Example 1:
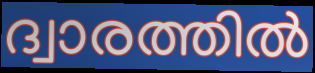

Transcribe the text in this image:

ദ്വാരത്തിൽ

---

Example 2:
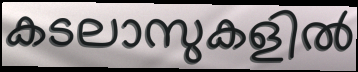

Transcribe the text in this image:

കടലാസുകളിൽ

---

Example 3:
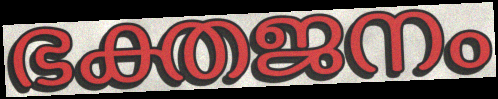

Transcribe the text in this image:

ഭക്തജനം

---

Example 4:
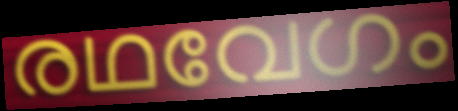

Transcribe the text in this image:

രഥവേഗം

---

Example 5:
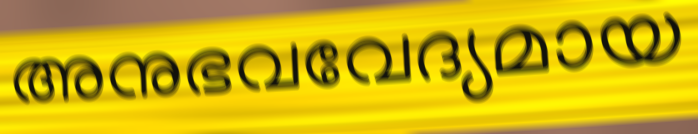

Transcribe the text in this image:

അനുഭവവേദ്യമായ